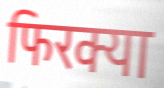
फिरक्या